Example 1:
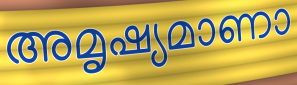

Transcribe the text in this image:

അമൃഷ്യമാണാ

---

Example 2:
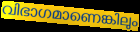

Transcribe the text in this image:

വിഭാഗമാണെങ്കിലും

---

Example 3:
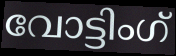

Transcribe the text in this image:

വോട്ടിംഗ്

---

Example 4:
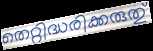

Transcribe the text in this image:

തെറ്റിദ്ധരിക്കരുതു്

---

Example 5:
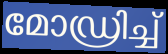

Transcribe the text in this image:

മോഡ്രിച്ച്